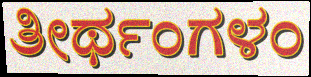
ತೀರ್ಥಂಗಳಂ